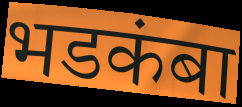
भडकंबा